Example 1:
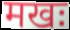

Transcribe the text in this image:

मखः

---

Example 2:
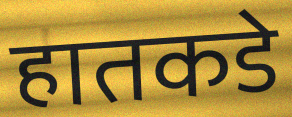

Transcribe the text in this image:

हातकडे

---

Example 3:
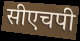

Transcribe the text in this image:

सीएचपी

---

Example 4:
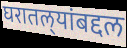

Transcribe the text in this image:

घरातल्यांबद्दल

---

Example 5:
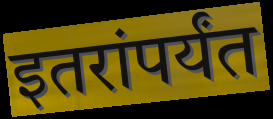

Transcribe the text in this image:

इतरांपर्यंत